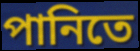
পানিতে